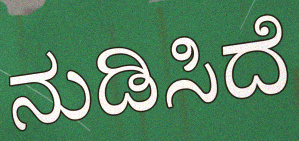
ನುಡಿಸಿದೆ